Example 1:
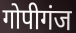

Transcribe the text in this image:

गोपीगंज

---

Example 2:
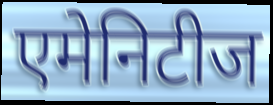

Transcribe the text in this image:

एमेनिटीज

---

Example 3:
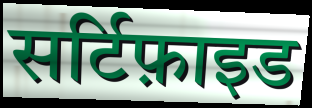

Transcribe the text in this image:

सर्टिफ़ाइड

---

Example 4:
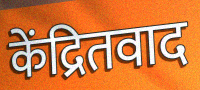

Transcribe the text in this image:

केंद्रितवाद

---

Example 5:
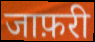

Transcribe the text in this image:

जाफ़री